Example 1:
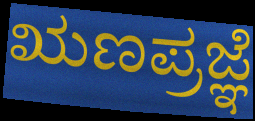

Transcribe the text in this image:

ಋಣಪ್ರಜ್ಞೆ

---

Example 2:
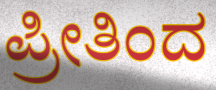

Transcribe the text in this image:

ಪ್ರೀತಿಂದ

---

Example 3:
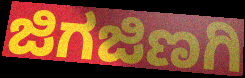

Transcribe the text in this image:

ಜಿಗಜಿಣಗಿ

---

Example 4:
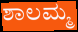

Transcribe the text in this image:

ಶಾಲಮ್ಮ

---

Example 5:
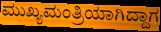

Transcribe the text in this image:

ಮುಖ್ಯಮಂತ್ರಿಯಾಗಿದ್ದಾಗ